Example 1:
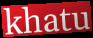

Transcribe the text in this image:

khatu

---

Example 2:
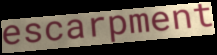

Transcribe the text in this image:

escarpment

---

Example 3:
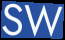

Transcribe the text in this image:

SW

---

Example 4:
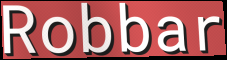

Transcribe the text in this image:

Robbar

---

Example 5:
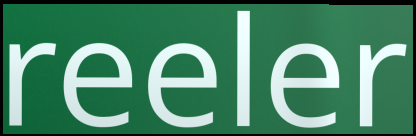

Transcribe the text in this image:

reeler